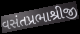
વસંતપ્રભાશ્રીજી